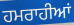
ਹਮਰਾਹੀਆਂ